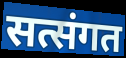
सत्संगत